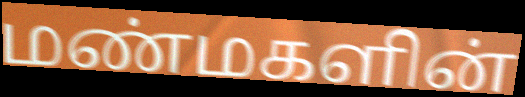
மண்மகளின்